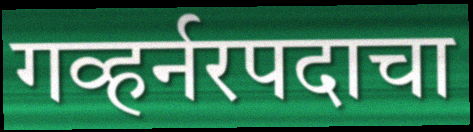
गव्हर्नरपदाचा